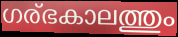
ഗര്ഭകാലത്തും